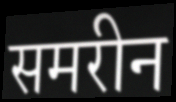
समरीन